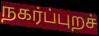
நகர்ப்புறச்